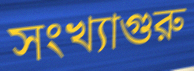
সংখ্যাগুরু